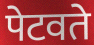
पेटवते